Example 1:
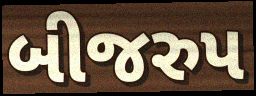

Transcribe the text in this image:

બીજરુપ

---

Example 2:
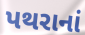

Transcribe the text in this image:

પથરાનાં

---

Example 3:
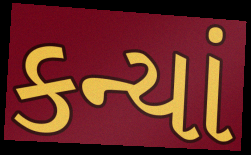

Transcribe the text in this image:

કન્યાં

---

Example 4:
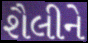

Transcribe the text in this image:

શૈલીને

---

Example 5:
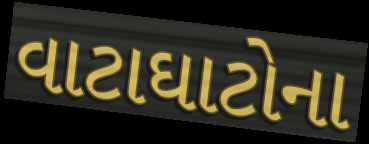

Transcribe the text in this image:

વાટાઘાટોના